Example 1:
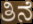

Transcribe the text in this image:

ತಿನೆ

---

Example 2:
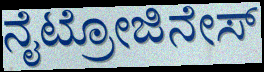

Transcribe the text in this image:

ನೈಟ್ರೋಜಿನೇಸ್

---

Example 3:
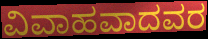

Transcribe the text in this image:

ವಿವಾಹವಾದವರ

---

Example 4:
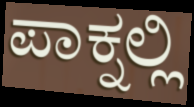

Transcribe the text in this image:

ಪಾಕ್ನಲ್ಲಿ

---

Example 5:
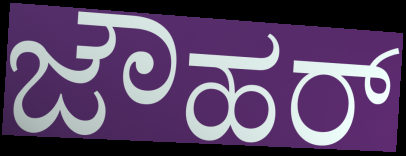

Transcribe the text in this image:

ಜೌಹರ್